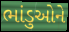
ભાંડુઓને